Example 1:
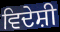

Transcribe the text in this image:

ਵਿਦੇਸ਼ੀ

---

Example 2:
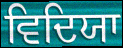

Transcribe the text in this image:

ਵਿਦਿਯਾ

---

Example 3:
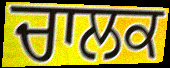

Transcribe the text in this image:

ਚਾਲਕ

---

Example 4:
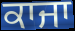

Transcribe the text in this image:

ਕਾਜਾ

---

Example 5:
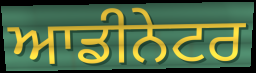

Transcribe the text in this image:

ਆਡੀਨੇਟਰ